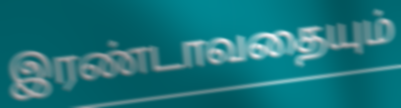
இரண்டாவதையும்